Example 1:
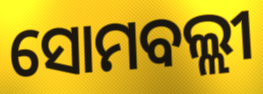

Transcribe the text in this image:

ସୋମବଲ୍ଲୀ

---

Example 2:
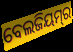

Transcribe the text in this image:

ବେଲଜିୟମ୍‌ର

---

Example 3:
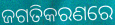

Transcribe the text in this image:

ଜଗତିକରଣରେ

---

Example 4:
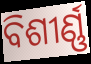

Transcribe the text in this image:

ବିଶୀର୍ଣ୍ଣ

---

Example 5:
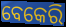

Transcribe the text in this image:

ବେକେରି